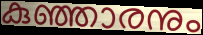
കുഞ്ഞാരനും